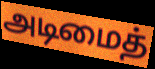
அடிமைத்